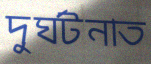
দুৰ্ঘটনাত